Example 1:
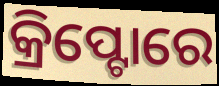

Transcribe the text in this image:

କ୍ରିପ୍ଟୋରେ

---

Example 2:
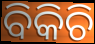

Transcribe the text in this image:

ବିକିଚି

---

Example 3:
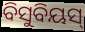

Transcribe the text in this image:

ବିସୁବିୟସ୍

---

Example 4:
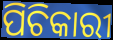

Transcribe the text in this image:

ପିଚିକାରୀ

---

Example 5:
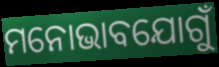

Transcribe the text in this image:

ମନୋଭାବଯୋଗୁଁ